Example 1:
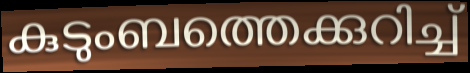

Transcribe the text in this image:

കുടുംബത്തെക്കുറിച്ച്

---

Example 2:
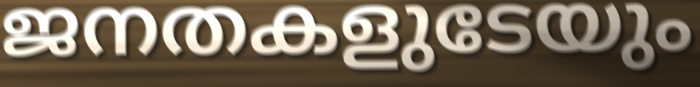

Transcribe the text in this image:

ജനതകളുടേയും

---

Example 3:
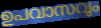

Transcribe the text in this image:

ഉപവാസവും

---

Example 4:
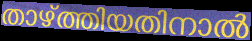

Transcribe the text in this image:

താഴ്ത്തിയതിനാൽ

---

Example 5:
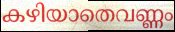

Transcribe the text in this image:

കഴിയാതെവണ്ണം